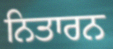
ਨਿਤਾਰਨ